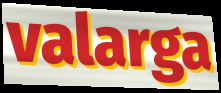
valarga